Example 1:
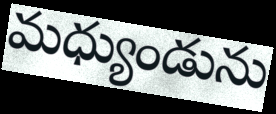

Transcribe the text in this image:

మధ్యుండును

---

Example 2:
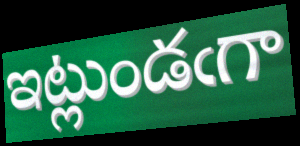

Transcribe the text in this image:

ఇట్లుండఁగా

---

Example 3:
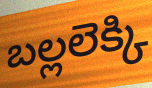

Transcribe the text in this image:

బల్లలెక్కి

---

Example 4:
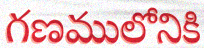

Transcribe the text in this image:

గణములోనికి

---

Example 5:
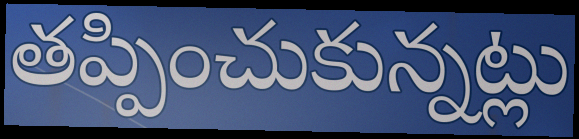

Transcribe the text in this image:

తప్పించుకున్నట్లు